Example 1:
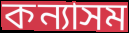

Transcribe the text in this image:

কন্যাসম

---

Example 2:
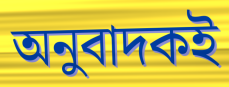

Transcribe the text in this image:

অনুবাদকই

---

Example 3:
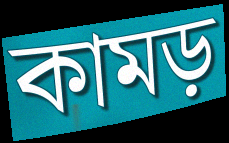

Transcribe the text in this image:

কামড়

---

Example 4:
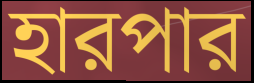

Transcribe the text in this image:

হারপার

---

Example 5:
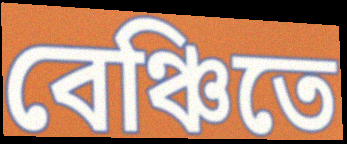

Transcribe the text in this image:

বেঞ্চিতে